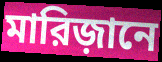
মারিজ়ানে